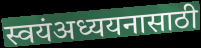
स्वयंअध्ययनासाठी